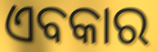
ଏବକାର